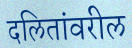
दलितांवरील